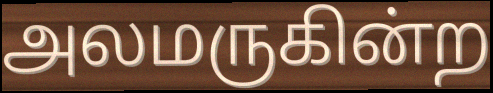
அலமருகின்ற